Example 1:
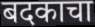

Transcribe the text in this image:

बदकाचा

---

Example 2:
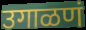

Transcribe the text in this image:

उगाळणं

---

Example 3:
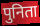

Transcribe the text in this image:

पुनिता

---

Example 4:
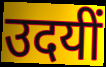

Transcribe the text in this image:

उदयीं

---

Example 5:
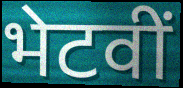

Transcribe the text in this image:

भेटवीं